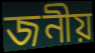
জনীয়